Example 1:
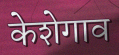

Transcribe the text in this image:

केशेगाव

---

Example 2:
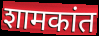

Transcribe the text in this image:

शामकांत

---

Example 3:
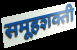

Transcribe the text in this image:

समूहशक्ती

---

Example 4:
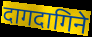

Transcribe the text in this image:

दागदागिने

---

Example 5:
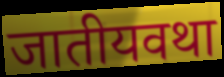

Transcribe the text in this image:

जातीयवथा